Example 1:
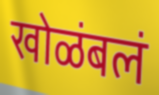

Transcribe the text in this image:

खोळंबलं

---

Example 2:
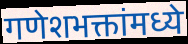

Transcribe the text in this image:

गणेशभक्तांमध्ये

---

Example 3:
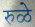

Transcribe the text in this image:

रुळे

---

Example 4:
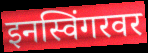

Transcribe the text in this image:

इनस्विंगरवर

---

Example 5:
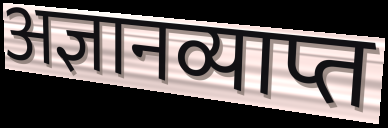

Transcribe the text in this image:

अज्ञानव्याप्त